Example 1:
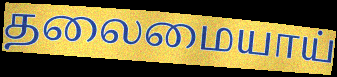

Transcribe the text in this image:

தலைமையாய்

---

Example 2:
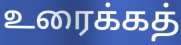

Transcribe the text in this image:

உரைக்கத்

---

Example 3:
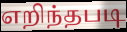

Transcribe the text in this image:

எறிந்தபடி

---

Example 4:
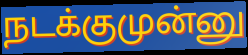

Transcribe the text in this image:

நடக்குமுன்னு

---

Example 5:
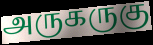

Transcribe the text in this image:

அருகருகு